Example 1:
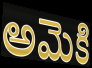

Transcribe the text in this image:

అమెకి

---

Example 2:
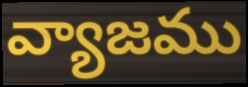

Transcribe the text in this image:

వ్యాజము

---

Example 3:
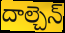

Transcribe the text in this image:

దాల్చెన్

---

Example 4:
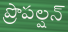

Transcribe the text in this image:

ప్రొపల్షన్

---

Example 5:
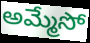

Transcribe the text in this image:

అమ్మేసో